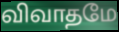
விவாதமே